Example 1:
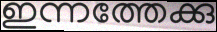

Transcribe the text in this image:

ഇന്നത്തേക്കു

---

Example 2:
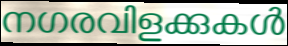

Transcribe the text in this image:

നഗരവിളക്കുകൾ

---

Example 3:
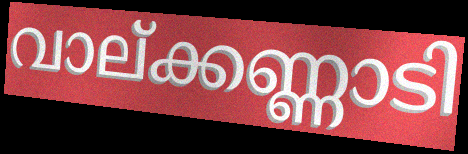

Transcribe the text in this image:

വാല്ക്കണ്ണാടി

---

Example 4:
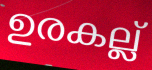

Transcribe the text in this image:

ഉരകല്ല്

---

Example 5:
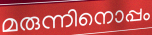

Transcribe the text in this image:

മരുന്നിനൊപ്പം